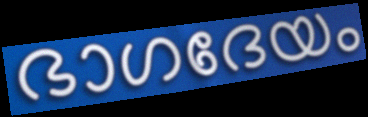
ഭാഗദേയം